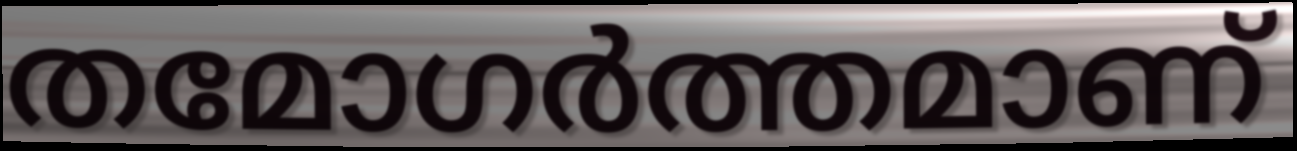
തമോഗർത്തമാണ്